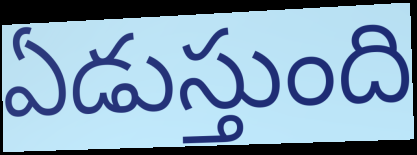
ఏడుస్తుంది